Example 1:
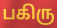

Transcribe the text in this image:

பகிரு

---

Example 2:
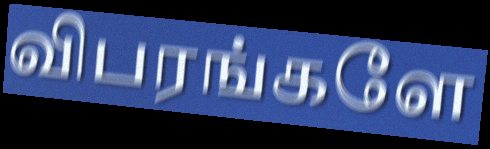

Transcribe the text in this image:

விபரங்களே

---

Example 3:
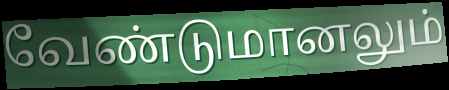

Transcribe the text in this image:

வேண்டுமானலும்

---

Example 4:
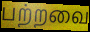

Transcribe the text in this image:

பற்றவை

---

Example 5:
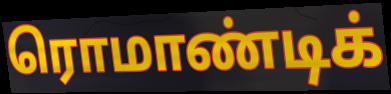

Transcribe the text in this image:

ரொமாண்டிக்